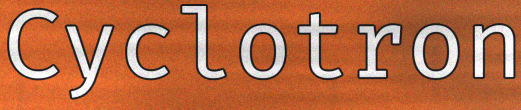
Cyclotron